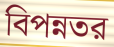
বিপন্নতর